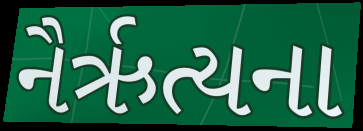
નૈર્ઋત્યના